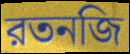
রতনজি